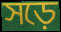
সড়ে